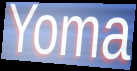
Yoma